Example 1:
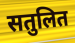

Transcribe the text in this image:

सतुलित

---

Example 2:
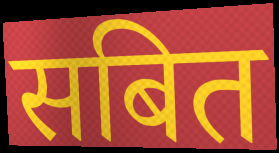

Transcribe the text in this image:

सबित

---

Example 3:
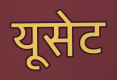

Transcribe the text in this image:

यूसेट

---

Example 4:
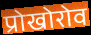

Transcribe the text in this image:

प्रोखोरोव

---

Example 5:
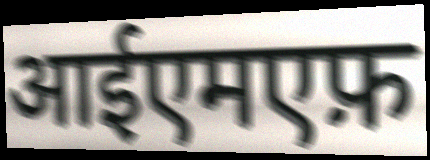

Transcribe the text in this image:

आईएमएफ़